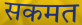
सकमत